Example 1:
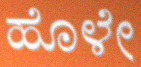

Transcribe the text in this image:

ಹೊಳೇ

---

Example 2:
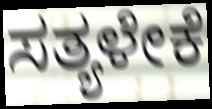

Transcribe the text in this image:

ಸತ್ಯಳೇಕೆ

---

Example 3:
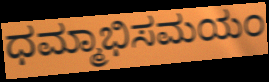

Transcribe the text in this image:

ಧಮ್ಮಾಭಿಸಮಯಂ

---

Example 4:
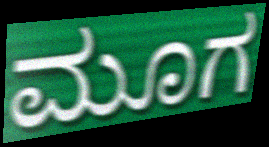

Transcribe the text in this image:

ಮೂಗ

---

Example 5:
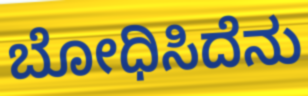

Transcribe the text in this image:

ಬೋಧಿಸಿದೆನು